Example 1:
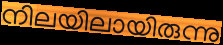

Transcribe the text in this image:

നിലയിലായിരുന്നു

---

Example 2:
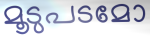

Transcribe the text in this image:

മൂടുപടമോ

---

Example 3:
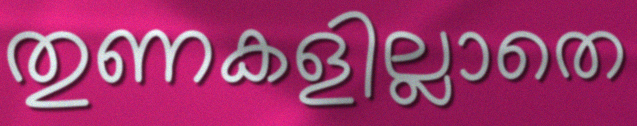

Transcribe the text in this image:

തുണകളില്ലാതെ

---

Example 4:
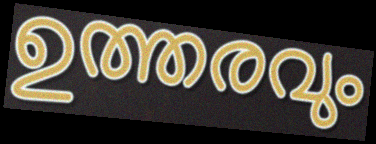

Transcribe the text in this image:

ഉത്തരവും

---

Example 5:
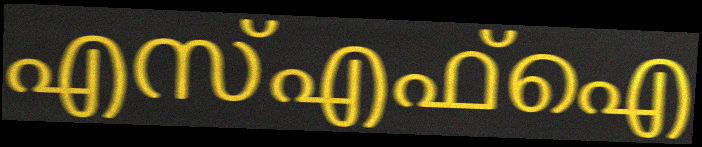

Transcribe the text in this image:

എസ്എഫ്ഐ